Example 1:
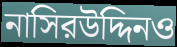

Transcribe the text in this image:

নাসিরউদ্দিনও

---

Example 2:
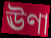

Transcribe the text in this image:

ঊণা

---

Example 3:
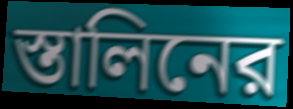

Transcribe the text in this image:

স্তালিনের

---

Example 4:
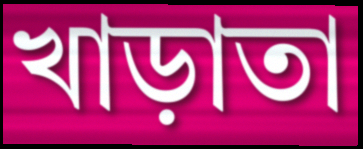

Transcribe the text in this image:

খাড়াতা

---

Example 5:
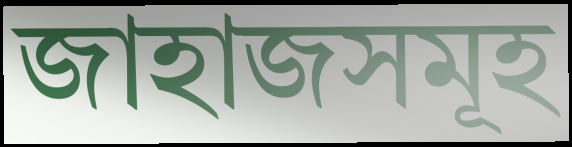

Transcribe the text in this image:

জাহাজসমূহ